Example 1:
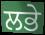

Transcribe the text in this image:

ਲਭੇ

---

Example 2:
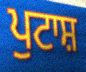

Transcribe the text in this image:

ਪੁਟਾਸ਼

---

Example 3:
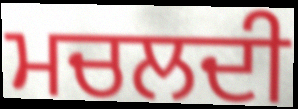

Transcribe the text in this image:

ਮਚਲਦੀ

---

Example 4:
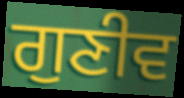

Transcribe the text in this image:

ਗੁਣੀਵ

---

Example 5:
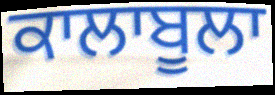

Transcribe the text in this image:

ਕਾਲਾਬੂਲਾ